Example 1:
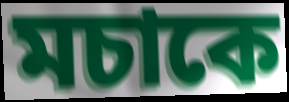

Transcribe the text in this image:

মচাকে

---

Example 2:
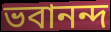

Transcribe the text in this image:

ভবানন্দ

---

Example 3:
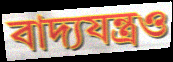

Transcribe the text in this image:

বাদ্যযন্ত্রও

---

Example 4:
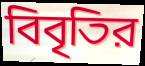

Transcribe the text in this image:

বিবৃতির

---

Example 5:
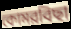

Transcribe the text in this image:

কোমরবিছা